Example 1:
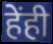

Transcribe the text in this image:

हेंही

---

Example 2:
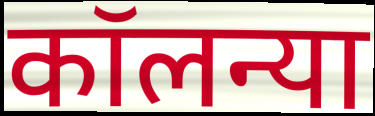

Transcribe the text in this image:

कॉलन्या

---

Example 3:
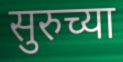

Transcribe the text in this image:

सुरुच्या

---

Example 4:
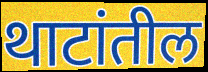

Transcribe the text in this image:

थाटांतील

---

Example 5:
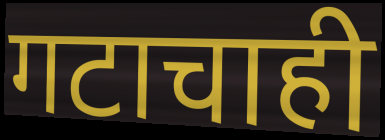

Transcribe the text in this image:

गटाचाही